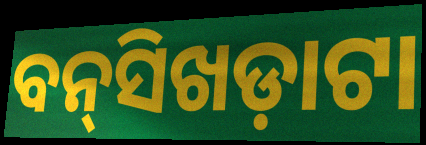
ବନ୍‌ସିଖଡ଼ାଟା